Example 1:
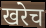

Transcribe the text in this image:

खरेच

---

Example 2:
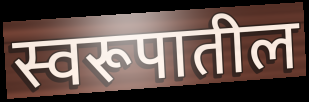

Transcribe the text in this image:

स्वरूपातील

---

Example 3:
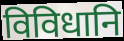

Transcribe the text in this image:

विविधानि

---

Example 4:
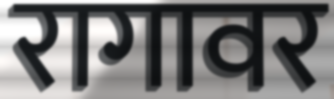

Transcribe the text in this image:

रागावर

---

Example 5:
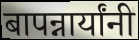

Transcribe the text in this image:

बापन्नार्यांनी